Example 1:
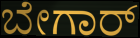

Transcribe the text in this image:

ಬೇಗಾರ್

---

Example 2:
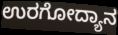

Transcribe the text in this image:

ಉರಗೋದ್ಯಾನ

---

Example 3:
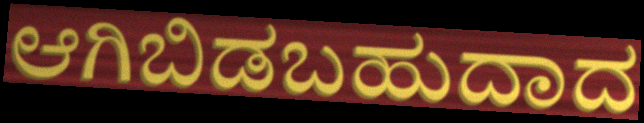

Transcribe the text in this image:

ಆಗಿಬಿಡಬಹುದಾದ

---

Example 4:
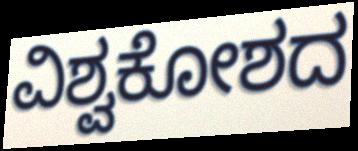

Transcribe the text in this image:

ವಿಶ್ವಕೋಶದ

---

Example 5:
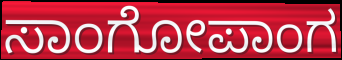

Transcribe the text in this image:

ಸಾಂಗೋಪಾಂಗ